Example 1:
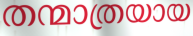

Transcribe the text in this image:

തന്മാത്രയായ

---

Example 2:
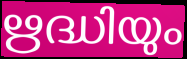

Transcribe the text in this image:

ഋദ്ധിയും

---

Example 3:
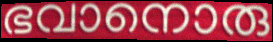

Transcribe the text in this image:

ഭവാനൊരു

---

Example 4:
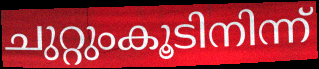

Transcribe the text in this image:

ചുറ്റുംകൂടിനിന്ന്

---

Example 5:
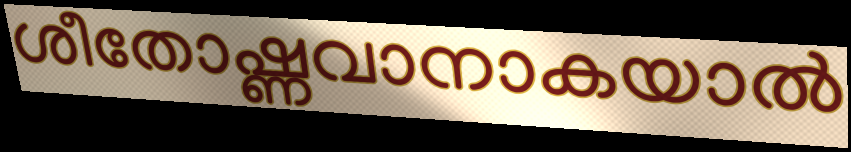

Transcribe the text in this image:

ശീതോഷ്ണവാനാകയാൽ